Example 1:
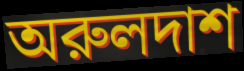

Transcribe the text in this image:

অরুলদাশ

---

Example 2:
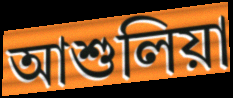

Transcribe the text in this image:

আশুলিয়া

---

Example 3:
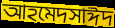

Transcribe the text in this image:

আহমেদসাঈদ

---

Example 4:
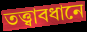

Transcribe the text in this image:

তত্ত্বাবধানে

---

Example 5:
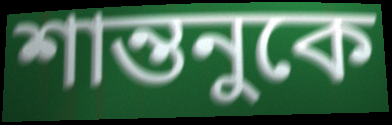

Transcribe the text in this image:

শান্তনুকে